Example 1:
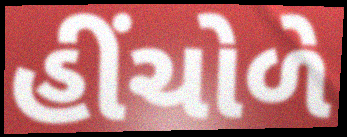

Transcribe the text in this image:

હીંચોળે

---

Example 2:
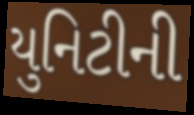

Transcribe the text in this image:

યુનિટીની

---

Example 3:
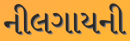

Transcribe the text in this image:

નીલગાયની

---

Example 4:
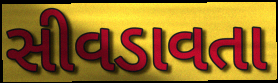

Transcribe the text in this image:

સીવડાવતા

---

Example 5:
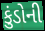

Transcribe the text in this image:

કુંડોની